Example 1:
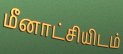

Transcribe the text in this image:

மீனாட்சியிடம்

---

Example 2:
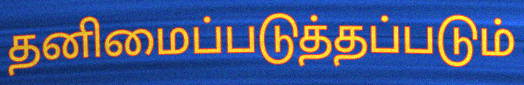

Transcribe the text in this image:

தனிமைப்படுத்தப்படும்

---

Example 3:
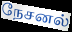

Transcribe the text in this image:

நேசனல்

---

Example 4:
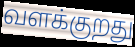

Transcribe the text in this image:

வளக்குறது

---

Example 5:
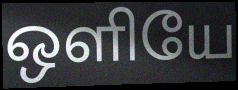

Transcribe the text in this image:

ஒளியே